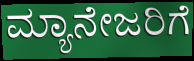
ಮ್ಯಾನೇಜರಿಗೆ